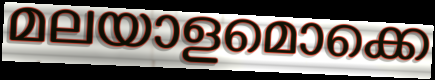
മലയാളമൊക്കെ